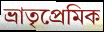
ভ্রাতৃপ্রেমিক